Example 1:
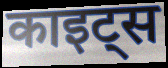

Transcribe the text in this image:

काइट्स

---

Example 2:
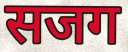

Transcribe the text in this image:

सजग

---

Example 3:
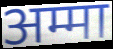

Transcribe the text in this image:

अम्मा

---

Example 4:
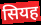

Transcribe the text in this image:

सियह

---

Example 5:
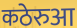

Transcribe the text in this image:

कठेरुआ